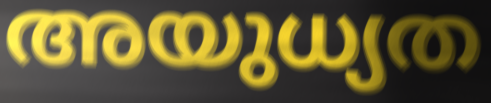
അയുധ്യത